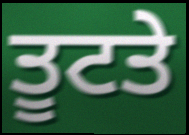
ਤੂਟਤੇ